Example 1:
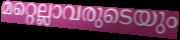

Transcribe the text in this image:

മറ്റെല്ലാവരുടെയും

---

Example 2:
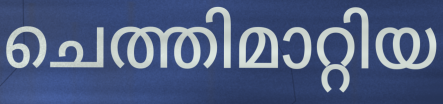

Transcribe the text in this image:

ചെത്തിമാറ്റിയ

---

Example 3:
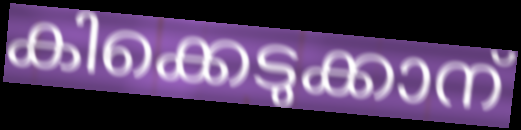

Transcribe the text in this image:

കിക്കെടുക്കാന്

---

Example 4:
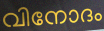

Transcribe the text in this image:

വിനോദം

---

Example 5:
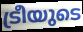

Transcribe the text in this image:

ട്രീയുടെ